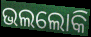
ଭଲଲୋକି